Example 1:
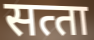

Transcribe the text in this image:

सत्‍ता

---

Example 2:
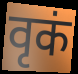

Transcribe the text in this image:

वृकं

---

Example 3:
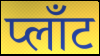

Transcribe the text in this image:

प्लाँट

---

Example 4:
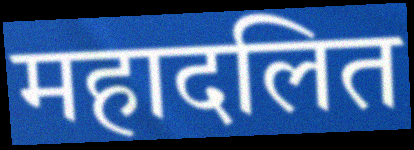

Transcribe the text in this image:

महादलित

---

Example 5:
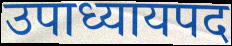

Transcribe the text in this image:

उपाध्यायपद